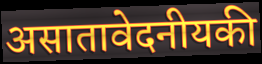
असातावेदनीयकी